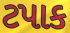
ટપાક